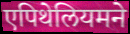
एपिथेलियमने